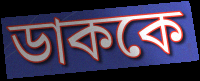
ডাককে